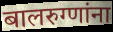
बालरुग्णांना